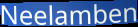
Neelamben